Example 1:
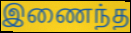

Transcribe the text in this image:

இணைந்த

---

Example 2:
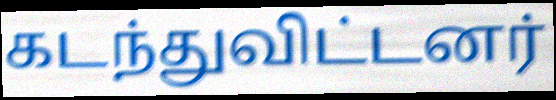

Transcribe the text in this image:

கடந்துவிட்டனர்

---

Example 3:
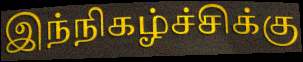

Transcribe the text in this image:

இந்நிகழ்ச்சிக்கு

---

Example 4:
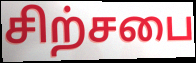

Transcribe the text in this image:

சிற்சபை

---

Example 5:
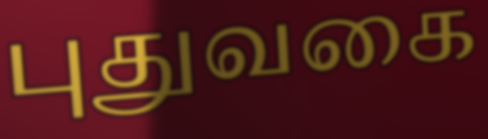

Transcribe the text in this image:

புதுவகை